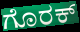
ಗೊರಕ್